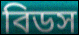
বিডস